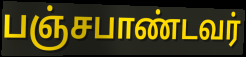
பஞ்சபாண்டவர்